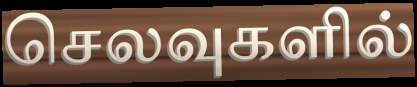
செலவுகளில்